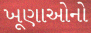
ખૂણાઓનો